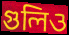
গুলিও